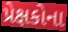
પ્રેક્ષકોના